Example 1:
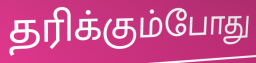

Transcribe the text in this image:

தரிக்கும்போது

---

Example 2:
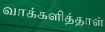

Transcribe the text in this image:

வாக்களித்தாள்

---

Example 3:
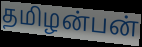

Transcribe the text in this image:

தமிழன்பன்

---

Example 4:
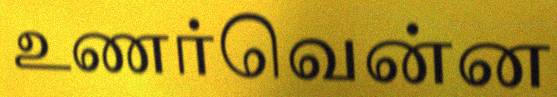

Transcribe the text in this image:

உணர்வென்ன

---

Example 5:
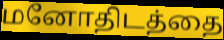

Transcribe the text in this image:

மனோதிடத்தை